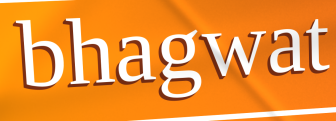
bhagwat